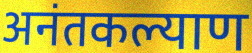
अनंतकल्याण